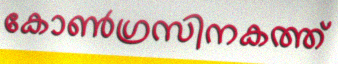
കോൺഗ്രസിനകത്ത്